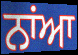
ਨਾਂਆ